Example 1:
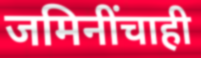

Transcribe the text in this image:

जमिनींचाही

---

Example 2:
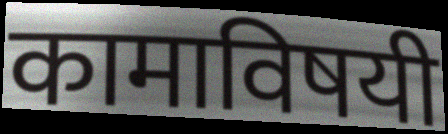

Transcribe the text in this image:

कामाविषयी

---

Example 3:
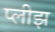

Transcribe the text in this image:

प्लीझ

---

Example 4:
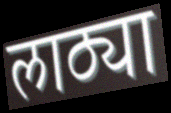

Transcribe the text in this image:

लाठ्या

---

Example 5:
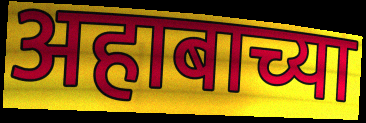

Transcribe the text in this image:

अहाबाच्या